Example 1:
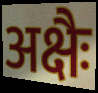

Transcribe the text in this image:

अक्षैः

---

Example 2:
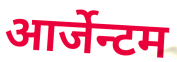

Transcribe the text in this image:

आर्जेन्टम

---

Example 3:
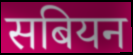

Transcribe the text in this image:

सबियन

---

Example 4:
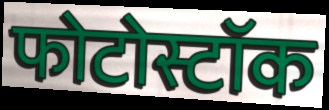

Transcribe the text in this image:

फोटोस्टॉक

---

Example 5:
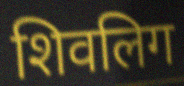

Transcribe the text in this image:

शिवलिग